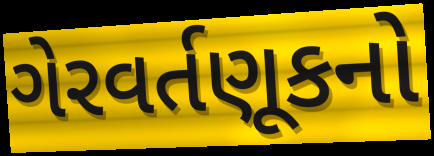
ગેરવર્તણૂકનો